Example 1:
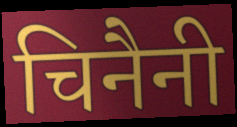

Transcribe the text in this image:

चिनैनी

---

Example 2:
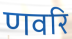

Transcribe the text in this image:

णवरि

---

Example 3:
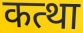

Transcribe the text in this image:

कत्था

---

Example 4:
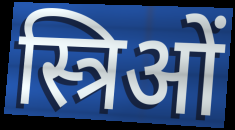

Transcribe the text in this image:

स्त्रिओं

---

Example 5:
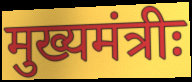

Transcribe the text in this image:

मुख्यमंत्रीः